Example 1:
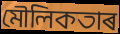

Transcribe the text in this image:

মৌলিকতাৰ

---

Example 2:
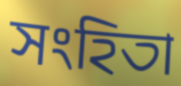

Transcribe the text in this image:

সংহিতা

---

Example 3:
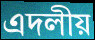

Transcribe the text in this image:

এদলীয়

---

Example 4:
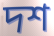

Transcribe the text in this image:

দশ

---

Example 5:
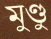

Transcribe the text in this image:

মুণ্ডু